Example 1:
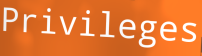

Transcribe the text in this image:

Privileges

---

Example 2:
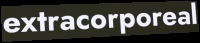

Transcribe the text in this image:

extracorporeal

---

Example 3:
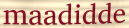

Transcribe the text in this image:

maadidde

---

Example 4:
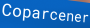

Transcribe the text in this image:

Coparcener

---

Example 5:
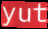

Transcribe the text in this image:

yut